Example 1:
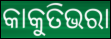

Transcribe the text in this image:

କାକୁତିଭରା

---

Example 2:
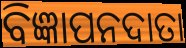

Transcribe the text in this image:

ବିଜ୍ଞାପନଦାତା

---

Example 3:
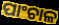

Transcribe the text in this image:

ପାଂଚାଳ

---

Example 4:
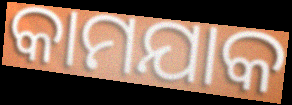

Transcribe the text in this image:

କାମଯାକ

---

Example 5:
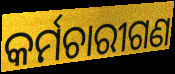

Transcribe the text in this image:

କର୍ମଚାରୀଗଣ